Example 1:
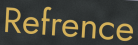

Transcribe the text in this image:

Refrence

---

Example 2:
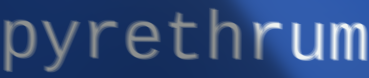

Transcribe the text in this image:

pyrethrum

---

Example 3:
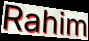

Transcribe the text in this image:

Rahim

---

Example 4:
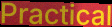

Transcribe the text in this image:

Practical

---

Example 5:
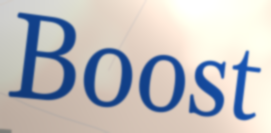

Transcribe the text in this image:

Boost